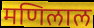
मणिलाल